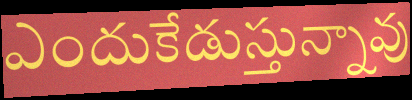
ఎందుకేడుస్తున్నావు